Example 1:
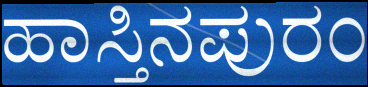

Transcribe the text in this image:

ಹಾಸ್ತಿನಪುರಂ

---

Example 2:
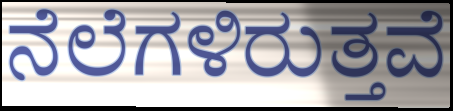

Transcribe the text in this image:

ನೆಲೆಗಳಿರುತ್ತವೆ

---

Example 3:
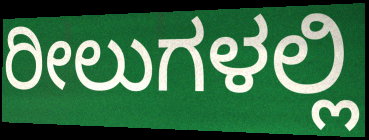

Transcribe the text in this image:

ರೀಲುಗಳಲ್ಲಿ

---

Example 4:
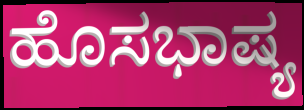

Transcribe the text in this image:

ಹೊಸಭಾಷ್ಯ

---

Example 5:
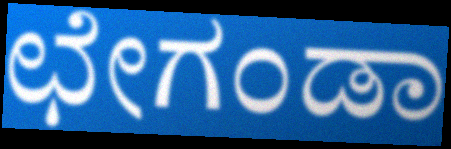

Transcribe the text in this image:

ಛೇಗಂಡಾ